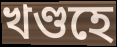
খণ্ডহে